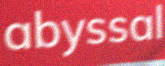
abyssal